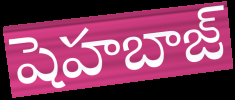
షెహబాజ్